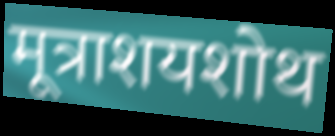
मूत्राशयशोथ